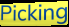
Picking